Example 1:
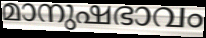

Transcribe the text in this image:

മാനുഷഭാവം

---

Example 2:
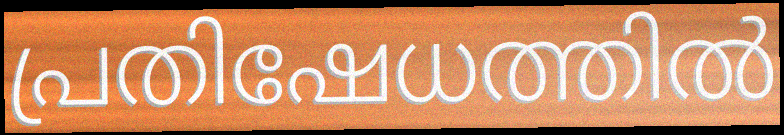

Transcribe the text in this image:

പ്രതിഷേധത്തിൽ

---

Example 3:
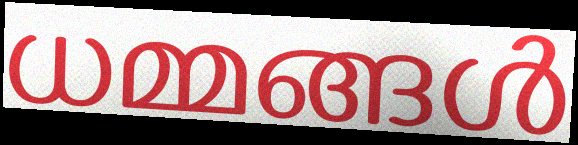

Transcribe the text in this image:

ധമ്മങ്ങൾ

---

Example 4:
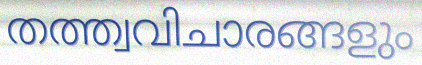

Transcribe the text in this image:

തത്ത്വവിചാരങ്ങളും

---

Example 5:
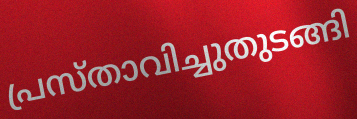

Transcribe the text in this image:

പ്രസ്താവിച്ചുതുടങ്ങി